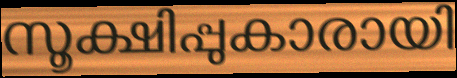
സൂക്ഷിപ്പുകാരായി